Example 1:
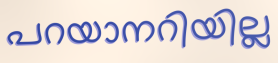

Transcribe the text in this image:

പറയാനറിയില്ല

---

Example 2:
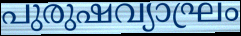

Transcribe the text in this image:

പുരുഷവ്യാഘ്രം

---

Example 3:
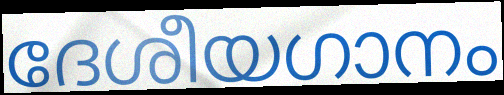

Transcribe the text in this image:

ദേശീയഗാനം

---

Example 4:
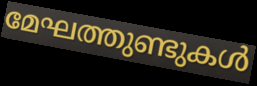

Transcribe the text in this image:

മേഘത്തുണ്ടുകൾ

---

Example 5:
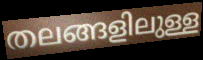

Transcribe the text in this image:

തലങ്ങളിലുള്ള